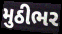
મુઠીભર